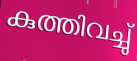
കുത്തിവച്ചു്